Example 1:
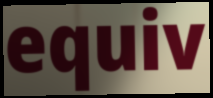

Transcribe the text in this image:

equiv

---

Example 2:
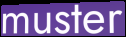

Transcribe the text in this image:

muster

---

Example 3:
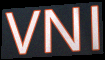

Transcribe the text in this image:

VNI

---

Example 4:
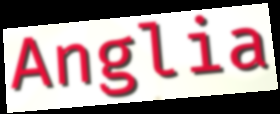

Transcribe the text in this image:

Anglia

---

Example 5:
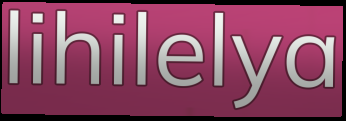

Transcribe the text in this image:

lihilelya